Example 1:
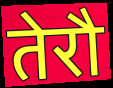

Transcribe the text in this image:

तेरौ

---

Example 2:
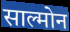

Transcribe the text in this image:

साल्मोन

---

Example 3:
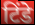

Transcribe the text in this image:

टिंडे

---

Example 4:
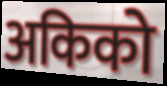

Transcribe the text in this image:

अकिको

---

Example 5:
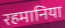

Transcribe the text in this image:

रहमानिया